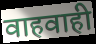
वाहवाही